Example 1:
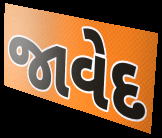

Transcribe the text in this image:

જાવેદ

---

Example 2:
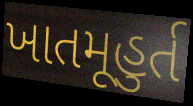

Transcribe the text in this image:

ખાતમૂહુર્ત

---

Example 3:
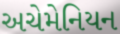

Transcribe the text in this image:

અચેમેનિયન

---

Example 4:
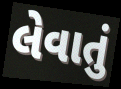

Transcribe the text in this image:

લેવાતું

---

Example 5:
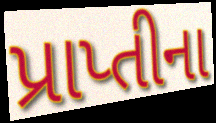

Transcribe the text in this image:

પ્રાપ્તીના